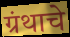
ग्रंथाचे